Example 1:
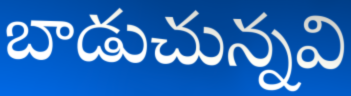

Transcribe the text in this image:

బాడుచున్నవి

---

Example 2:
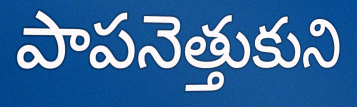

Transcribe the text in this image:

పాపనెత్తుకుని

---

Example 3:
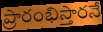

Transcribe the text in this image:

ప్రారంభిస్తారనే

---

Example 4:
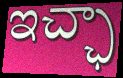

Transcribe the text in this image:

ఇచ్ఛా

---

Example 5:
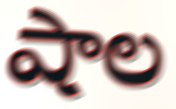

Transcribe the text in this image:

షాల